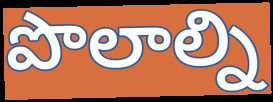
పొలాల్ని